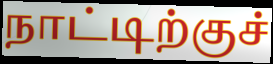
நாட்டிற்குச்